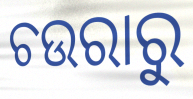
ଚଉରାରୁ